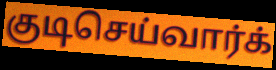
குடிசெய்வார்க்